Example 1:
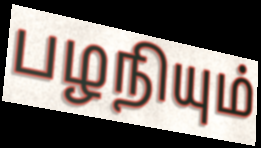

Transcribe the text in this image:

பழநியும்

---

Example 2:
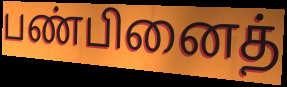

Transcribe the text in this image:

பண்பினைத்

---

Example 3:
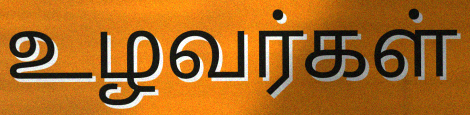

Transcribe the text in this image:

உழவர்கள்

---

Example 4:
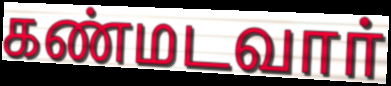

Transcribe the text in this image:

கண்மடவார்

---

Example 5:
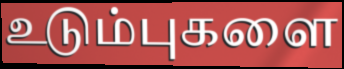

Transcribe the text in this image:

உடும்புகளை